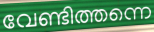
വേണ്ടിത്തന്നെ